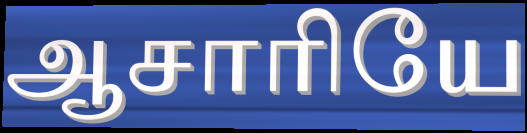
ஆசாரியே